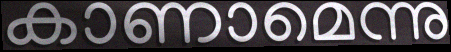
കാണാമെന്നു